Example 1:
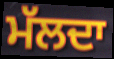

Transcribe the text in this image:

ਮੱਲਦਾ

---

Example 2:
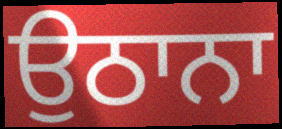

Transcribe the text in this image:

ਉਠਾਨਾ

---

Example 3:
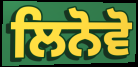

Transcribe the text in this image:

ਲਿਨੋਵੋ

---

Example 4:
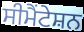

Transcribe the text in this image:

ਸੀਮੈਂਟੇਸ਼ਨ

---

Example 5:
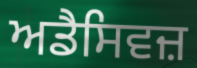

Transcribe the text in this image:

ਅਡੈਸਿਵਜ਼